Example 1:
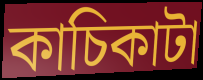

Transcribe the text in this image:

কাচিকাটা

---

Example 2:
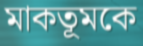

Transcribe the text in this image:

মাকতূমকে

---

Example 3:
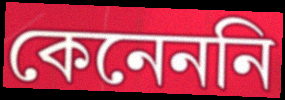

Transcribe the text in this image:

কেনেননি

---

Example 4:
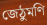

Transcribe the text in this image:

জেঠুমণি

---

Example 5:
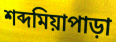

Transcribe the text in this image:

শব্দমিয়াপাড়া